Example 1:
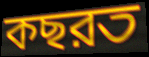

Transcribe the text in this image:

কছরত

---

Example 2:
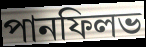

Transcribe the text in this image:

পানফিলভ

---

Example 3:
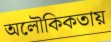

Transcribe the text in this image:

অলৌকিকতায়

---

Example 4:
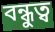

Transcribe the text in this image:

বন্ধুত্ব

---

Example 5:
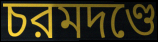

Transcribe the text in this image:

চরমদণ্ডে